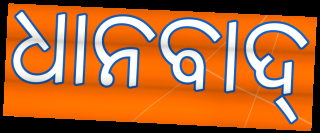
ଧାନବାଦ୍